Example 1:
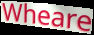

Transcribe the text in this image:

Wheare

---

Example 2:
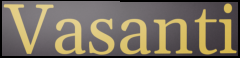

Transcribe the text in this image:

Vasanti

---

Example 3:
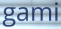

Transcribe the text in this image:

gami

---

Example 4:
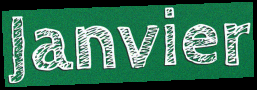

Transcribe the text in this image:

Janvier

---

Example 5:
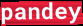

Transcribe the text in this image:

pandey